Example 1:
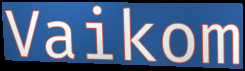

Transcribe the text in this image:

Vaikom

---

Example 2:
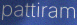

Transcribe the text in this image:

pattiram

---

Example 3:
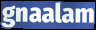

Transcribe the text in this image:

gnaalam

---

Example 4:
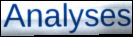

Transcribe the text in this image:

Analyses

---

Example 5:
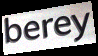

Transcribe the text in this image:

berey